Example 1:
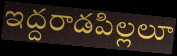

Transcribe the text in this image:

ఇద్దరాడపిల్లలూ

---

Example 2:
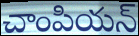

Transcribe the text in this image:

చాంపియన్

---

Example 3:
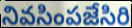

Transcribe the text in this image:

నివసింపజేసిరి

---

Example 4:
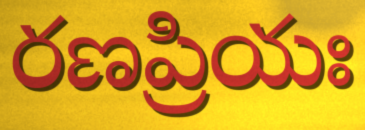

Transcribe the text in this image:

రణప్రియః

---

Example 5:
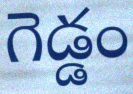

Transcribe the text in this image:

గెడ్డం